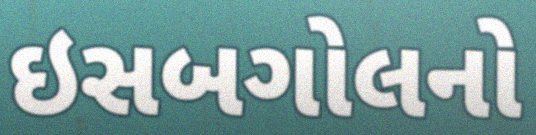
ઇસબગોલનો